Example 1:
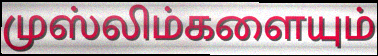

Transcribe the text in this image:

முஸ்லிம்களையும்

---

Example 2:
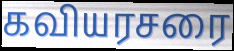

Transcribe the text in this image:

கவியரசரை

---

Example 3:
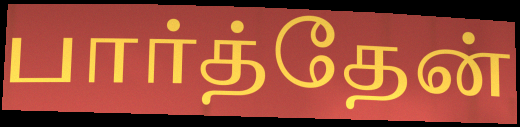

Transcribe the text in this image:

பார்த்தேன்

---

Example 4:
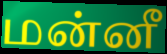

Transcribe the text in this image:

மன்னீ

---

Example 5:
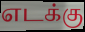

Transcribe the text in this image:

எடக்கு